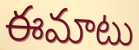
ఈమాటు